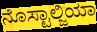
ನೊಸ್ಟಾಲ್ಜಿಯಾ